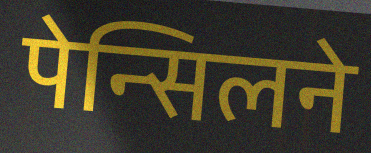
पेन्सिलने